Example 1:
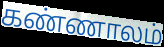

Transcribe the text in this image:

கண்ணாலம்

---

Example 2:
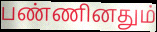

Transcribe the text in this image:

பண்ணினதும்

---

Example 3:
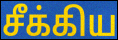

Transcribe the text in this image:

சீக்கிய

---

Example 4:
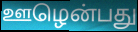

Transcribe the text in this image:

ஊழென்பது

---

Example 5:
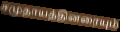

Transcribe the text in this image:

சமுதாயத்தினரையும்